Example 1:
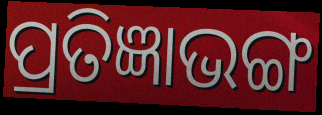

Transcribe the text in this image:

ପ୍ରତିଜ୍ଞାଭଙ୍ଗ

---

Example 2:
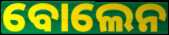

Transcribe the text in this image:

ବୋଲେନ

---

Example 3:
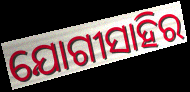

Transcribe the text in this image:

ଯୋଗୀସାହିର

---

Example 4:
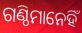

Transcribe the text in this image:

ଗଣ୍ଠିମାନେହିଁ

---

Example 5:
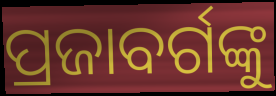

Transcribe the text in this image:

ପ୍ରଜାବର୍ଗଙ୍କୁ